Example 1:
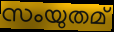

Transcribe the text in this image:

സംയുതമ്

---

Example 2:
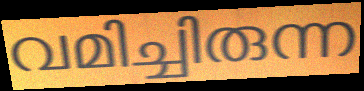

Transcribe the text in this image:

വമിച്ചിരുന്ന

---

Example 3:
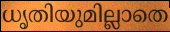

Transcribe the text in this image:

ധൃതിയുമില്ലാതെ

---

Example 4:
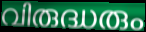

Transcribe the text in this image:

വിരുദ്ധരും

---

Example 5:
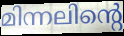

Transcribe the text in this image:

മിന്നലിന്റെ